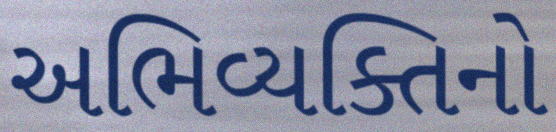
અભિવ્યક્તિનો